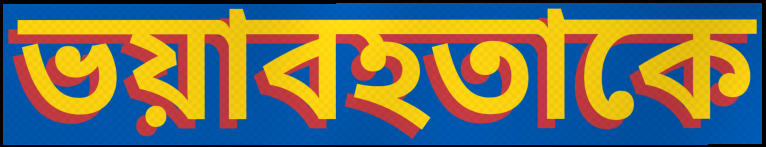
ভয়াবহতাকে